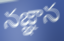
నజ్ఞాన